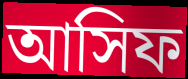
আসিফ